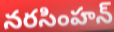
నరసింహన్